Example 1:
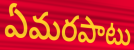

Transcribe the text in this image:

ఏమరపాటు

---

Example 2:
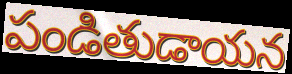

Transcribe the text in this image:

పండితుడాయన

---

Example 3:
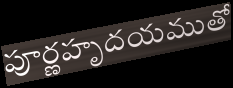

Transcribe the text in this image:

పూర్ణహృదయముతో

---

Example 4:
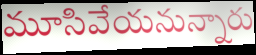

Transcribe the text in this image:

మూసివేయనున్నారు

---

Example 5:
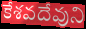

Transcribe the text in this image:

కేశవదేవుని